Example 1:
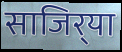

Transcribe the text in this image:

साजिर्‍या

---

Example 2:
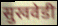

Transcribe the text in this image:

सुखवेडी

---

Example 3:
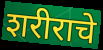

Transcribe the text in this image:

शरीराचे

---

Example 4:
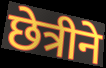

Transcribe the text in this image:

छेत्रीने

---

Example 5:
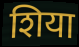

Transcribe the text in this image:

शिया